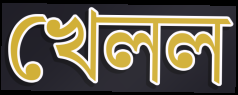
খেলল